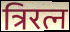
त्रिरत्न